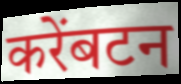
करेंबटन